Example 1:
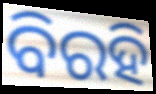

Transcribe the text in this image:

ବିରହି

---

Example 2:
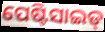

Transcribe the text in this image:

ପେଷ୍ଟିସାଇଡ୍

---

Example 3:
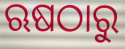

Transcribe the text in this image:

ଋଷଠାରୁ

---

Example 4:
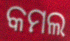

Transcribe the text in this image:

କମଲ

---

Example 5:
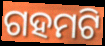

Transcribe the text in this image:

ଗହମଟି